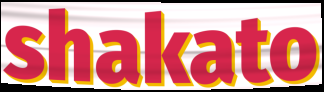
shakato